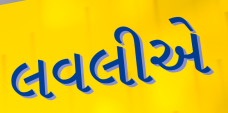
લવલીએ